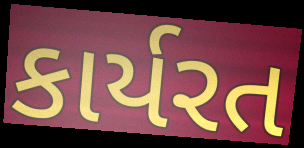
કાર્યરત